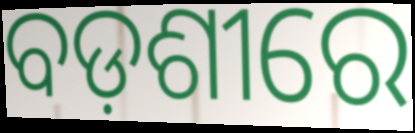
ବଡ଼ଶୀରେ